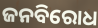
ଜନବିରୋଧ